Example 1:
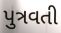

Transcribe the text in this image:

પુત્રવતી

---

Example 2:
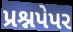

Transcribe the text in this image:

પ્રશ્નપેપર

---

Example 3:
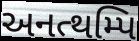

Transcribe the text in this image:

અનત્થમ્પિ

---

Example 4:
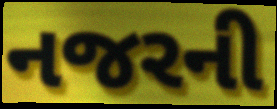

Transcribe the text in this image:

નજરની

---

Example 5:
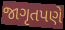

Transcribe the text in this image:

જાગૃતપણે